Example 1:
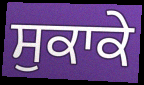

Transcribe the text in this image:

ਸੁਕਾਕੇ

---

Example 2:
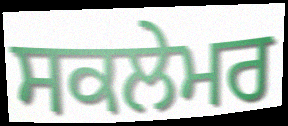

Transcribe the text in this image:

ਸਕਲੇਮਰ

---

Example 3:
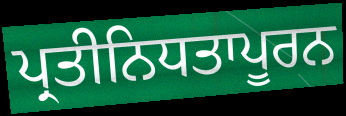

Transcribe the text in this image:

ਪ੍ਰਤੀਨਿਧਤਾਪੂਰਨ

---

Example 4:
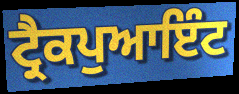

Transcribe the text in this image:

ਟ੍ਰੈਕਪੁਆਇੰਟ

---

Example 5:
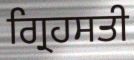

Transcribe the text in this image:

ਗ੍ਰਿਹਸਤੀ